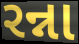
રન્ના